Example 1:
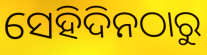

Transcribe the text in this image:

ସେହିଦିନଠାରୁ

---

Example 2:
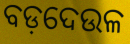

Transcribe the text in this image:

ବଡ଼ଦେଉଳ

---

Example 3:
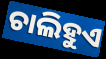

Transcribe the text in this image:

ଚାଲିହୁଏ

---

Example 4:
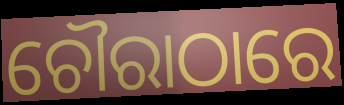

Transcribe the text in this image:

ଚୌରାଠାରେ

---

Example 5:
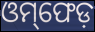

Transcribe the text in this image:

ଓମ୍‌ଫେଡ଼